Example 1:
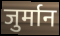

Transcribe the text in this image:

जुर्मान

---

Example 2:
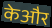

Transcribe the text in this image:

केऔर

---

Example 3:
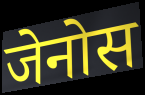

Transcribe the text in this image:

जेनोस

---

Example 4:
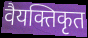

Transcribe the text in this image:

वैयक्तिकृत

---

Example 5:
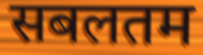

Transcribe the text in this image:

सबलतम